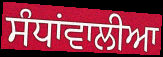
ਸੰਧਾਂਵਾਲੀਆ